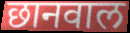
छानवाल